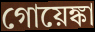
গোয়েঙ্কা